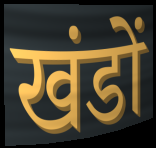
खंडों